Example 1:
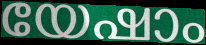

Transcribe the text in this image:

യേഷാം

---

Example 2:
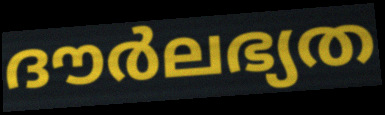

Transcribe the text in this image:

ദൗർലഭ്യത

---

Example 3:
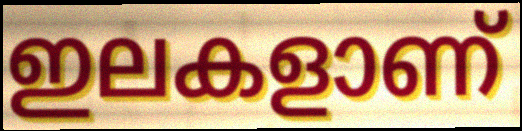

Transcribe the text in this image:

ഇലകളാണ്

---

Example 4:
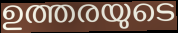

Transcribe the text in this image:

ഉത്തരയുടെ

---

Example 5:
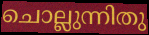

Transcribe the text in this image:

ചൊല്ലുന്നിതു